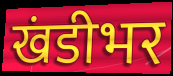
खंडीभर